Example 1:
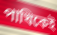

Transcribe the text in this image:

পাখিকেই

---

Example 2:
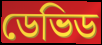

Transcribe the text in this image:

ডেভিড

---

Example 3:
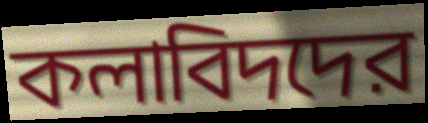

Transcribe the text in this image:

কলাবিদদের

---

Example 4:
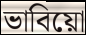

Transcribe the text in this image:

ভাবিয়ো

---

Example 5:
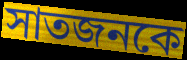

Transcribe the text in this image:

সাতজনকে